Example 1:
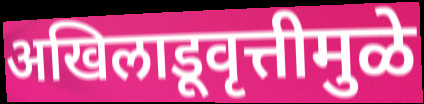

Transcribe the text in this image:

अखिलाडूवृत्तीमुळे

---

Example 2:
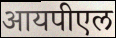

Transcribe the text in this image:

आयपीएल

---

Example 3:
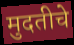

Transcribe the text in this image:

मुदतीचे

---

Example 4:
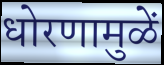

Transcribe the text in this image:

धोरणामुळें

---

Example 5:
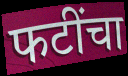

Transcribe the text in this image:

फटींचा